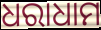
ଧରାଧାମ